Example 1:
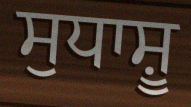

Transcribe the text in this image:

ਸੁਧਾਸ਼ੂ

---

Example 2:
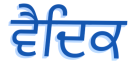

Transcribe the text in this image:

ਵੈਦਿਕ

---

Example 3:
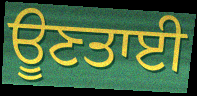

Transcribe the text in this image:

ਊਣਤਾਈ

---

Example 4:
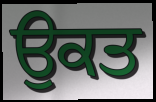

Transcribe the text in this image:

ਉਕਤ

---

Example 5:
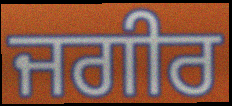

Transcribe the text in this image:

ਜਗੀਰ